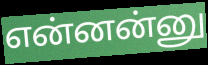
என்னன்னு